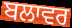
ਬਲਾਵਰ